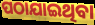
ପଠାଯାଇଥିବା